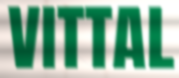
VITTAL